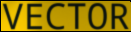
VECTOR